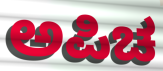
ಅಪಿಚ